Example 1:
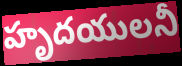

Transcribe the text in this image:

హృదయులనీ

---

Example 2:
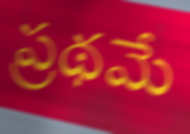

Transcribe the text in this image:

ప్రథమే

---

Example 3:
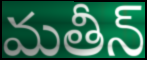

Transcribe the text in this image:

మతీన్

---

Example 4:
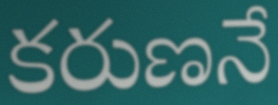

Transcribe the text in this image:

కరుణనే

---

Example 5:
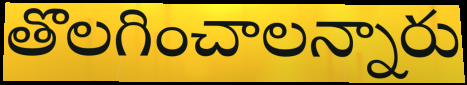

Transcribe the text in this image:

తొలగించాలన్నారు